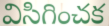
విసిగించక